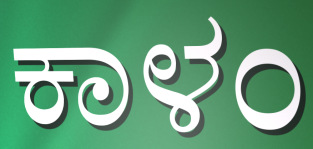
ಕಾಳಂ